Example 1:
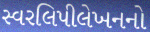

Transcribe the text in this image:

સ્વરલિપીલેખનનો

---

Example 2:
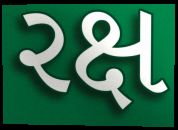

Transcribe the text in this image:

રક્ષ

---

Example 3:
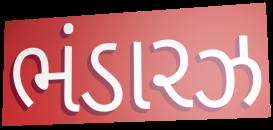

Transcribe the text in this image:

ભંડારઝ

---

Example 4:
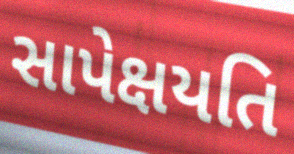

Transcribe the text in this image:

સાપેક્ષયતિ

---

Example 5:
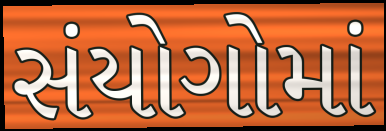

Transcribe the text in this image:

સંયોગોમાં